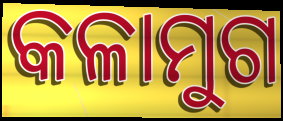
କଳାମୁଗ